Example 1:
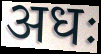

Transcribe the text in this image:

अधः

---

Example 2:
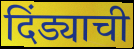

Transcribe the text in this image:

दिंड्याची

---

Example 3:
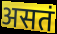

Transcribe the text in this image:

असतं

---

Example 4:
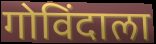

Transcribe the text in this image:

गोविंदाला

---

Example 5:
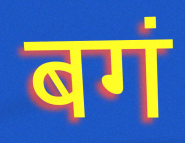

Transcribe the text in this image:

बगं